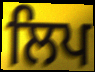
ਲਿਪ